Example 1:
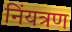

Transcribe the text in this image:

निंयत्रण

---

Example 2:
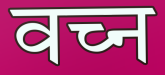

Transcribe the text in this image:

वच्न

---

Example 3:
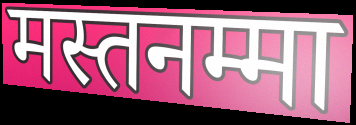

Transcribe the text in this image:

मस्तनम्मा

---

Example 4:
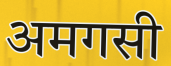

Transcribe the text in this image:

अमगसी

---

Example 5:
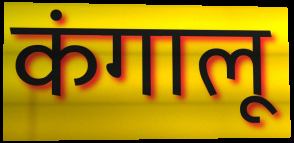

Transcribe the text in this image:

कंगालू